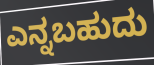
ಎನ್ನಬಹುದು